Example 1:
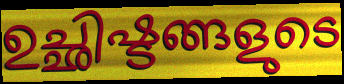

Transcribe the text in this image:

ഉച്ഛിഷ്ടങ്ങളുടെ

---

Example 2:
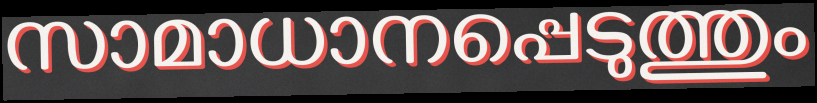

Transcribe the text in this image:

സാമാധാനപ്പെടുത്തും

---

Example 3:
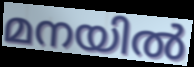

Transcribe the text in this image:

മനയിൽ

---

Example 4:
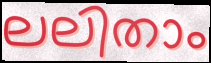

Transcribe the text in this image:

ലലിതാം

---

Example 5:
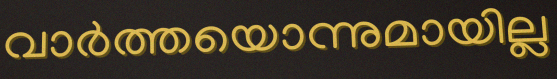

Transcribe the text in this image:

വാർത്തയൊന്നുമായില്ല